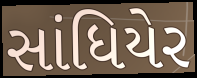
સાંધિયેર